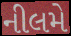
નીલમે